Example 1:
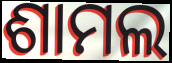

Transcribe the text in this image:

ଶାମଲ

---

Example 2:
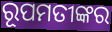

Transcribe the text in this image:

ରୂପମତୀଙ୍କର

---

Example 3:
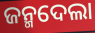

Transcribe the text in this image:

ଜନ୍ମଦେଲା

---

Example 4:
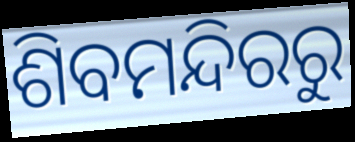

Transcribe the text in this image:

ଶିବମନ୍ଦିରରୁ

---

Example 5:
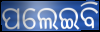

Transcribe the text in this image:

ପଲେଇବି